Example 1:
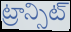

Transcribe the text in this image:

ట్రాన్సిట్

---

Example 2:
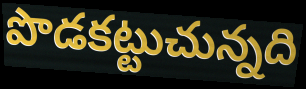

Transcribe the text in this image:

పొడకట్టుచున్నది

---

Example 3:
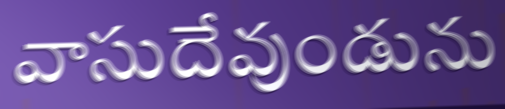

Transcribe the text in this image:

వాసుదేవుండును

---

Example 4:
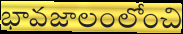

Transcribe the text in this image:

భావజాలంలోంచి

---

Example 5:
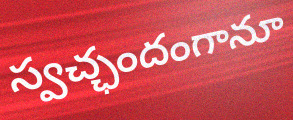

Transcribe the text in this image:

స్వచ్ఛందంగానూ